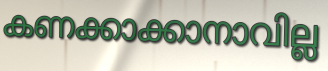
കണക്കാക്കാനാവില്ല